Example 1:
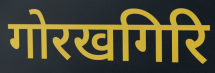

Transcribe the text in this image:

गोरखगिरि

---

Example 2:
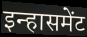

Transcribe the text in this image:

इन्हासमेंट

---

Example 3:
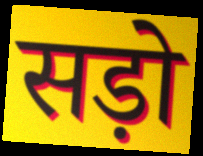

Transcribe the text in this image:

सड़ो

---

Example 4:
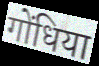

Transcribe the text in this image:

गोंधिया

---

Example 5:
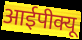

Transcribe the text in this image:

आईपीक्यू